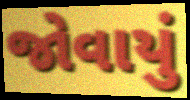
જોવાયું